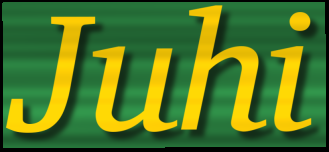
Juhi